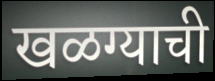
खळग्याची